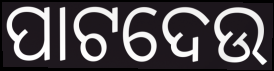
ପାଟଦେଉ